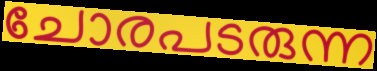
ചോരപടരുന്ന